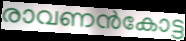
രാവണൻകോട്ട